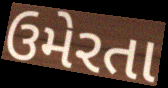
ઉમેરતા